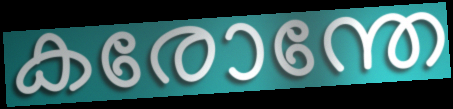
കരോന്തേ